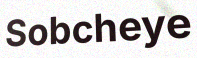
Sobcheye